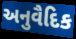
અનુવૈદિક